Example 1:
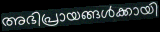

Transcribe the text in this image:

അഭിപ്രായങ്ങൾക്കായി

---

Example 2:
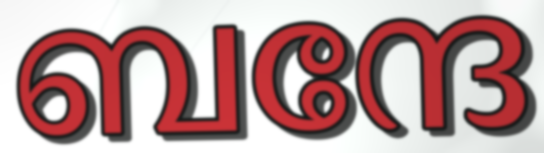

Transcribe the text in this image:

ബന്ദേ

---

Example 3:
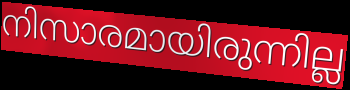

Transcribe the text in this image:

നിസാരമായിരുന്നില്ല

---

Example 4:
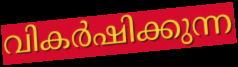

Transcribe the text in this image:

വികർഷിക്കുന്ന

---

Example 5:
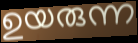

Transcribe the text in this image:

ഉയരുന്ന